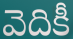
వెదికీ